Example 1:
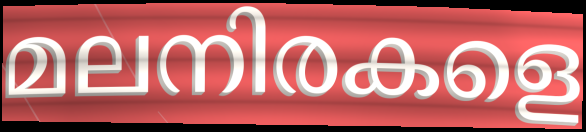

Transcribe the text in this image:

മലനിരകളെ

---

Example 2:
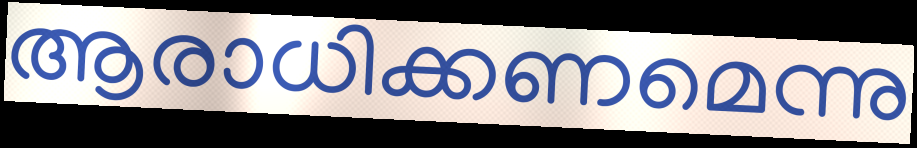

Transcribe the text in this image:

ആരാധിക്കണമെന്നു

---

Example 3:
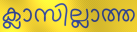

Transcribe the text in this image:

ക്ലാസില്ലാത്ത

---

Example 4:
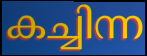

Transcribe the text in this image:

കച്ചിന്ന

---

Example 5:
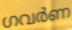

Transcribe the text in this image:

ഗവർണ